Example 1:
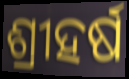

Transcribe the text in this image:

ଶ୍ରୀହର୍ଷ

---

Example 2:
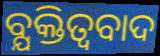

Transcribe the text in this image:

ବ୍ଯକ୍ତିତ୍ଵବାଦ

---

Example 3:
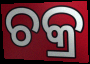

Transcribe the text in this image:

ଚକ୍ର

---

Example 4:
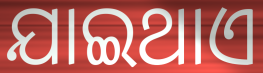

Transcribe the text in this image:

ଯାଇଥାଏ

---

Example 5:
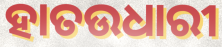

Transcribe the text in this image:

ହାତଉଧାରୀ